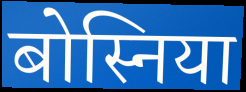
बोस्निया